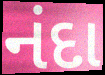
નંદા